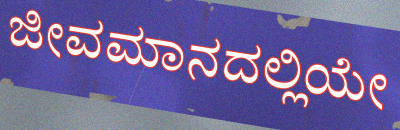
ಜೀವಮಾನದಲ್ಲಿಯೇ